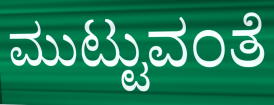
ಮುಟ್ಟುವಂತೆ